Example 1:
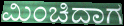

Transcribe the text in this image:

ಮಿಂಚಿದಾಗ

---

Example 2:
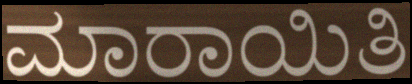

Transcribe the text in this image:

ಮಾರಾಯಿತಿ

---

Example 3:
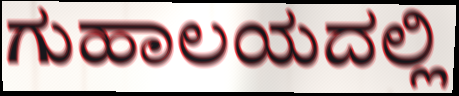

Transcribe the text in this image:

ಗುಹಾಲಯದಲ್ಲಿ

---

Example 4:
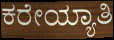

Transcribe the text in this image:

ಕರೇಯ್ಯಾತಿ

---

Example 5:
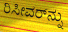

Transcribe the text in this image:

ರಿಸೀವರ್‌ನ್ನು